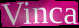
Vinca